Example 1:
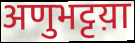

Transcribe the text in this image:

अणुभट्टय़ा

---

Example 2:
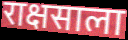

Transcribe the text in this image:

राक्षसाला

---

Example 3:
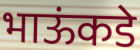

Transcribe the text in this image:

भाऊंकडे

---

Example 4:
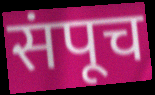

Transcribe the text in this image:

संपूच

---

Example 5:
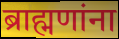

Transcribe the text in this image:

ब्राह्मणांना